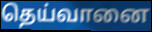
தெய்வானை